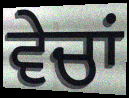
ਵੇਚਾਂ